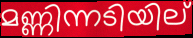
മണ്ണിന്നടിയില്